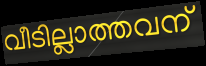
വീടില്ലാത്തവന്